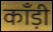
काँड़ी